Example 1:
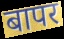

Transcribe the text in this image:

बापर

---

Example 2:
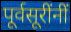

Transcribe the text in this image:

पूर्वसूरींनीं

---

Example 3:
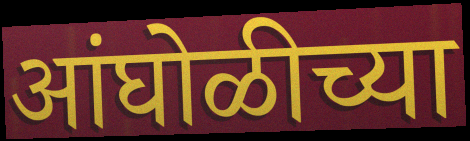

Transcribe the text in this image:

आंघोळीच्या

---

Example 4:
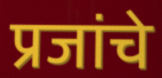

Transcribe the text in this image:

प्रजांचे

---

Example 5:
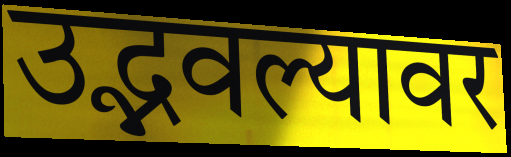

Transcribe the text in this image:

उद्भवल्यावर